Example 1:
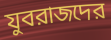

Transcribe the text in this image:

যুবরাজদের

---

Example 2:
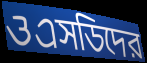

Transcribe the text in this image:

ওএসডিদের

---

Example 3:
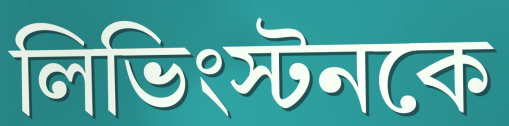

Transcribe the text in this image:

লিভিংস্টনকে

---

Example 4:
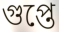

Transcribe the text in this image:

গুপ্তে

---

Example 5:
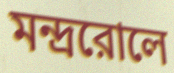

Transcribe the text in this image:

মন্দ্ররোলে